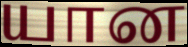
யான